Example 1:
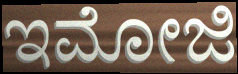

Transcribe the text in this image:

ಇಮೋಜಿ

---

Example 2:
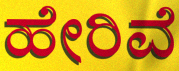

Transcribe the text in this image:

ಹೇರಿವೆ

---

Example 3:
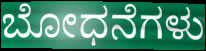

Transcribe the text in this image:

ಬೋಧನೆಗಳು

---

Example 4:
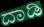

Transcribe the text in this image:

ದಾಡಿ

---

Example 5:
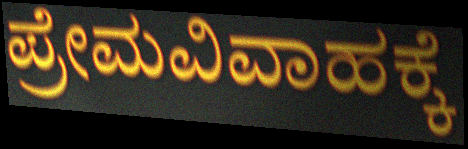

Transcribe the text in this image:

ಪ್ರೇಮವಿವಾಹಕ್ಕೆ